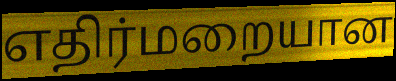
எதிர்மறையான